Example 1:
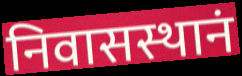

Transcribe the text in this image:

निवासस्थानं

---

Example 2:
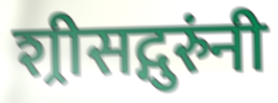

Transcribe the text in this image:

श्रीसद्गुरुंनी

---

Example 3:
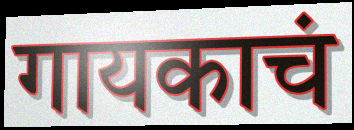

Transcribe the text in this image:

गायकाचं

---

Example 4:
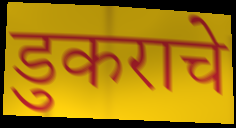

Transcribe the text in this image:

डुकराचे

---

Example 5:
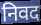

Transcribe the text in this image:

निवद